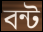
বন্ট